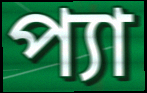
প্যা